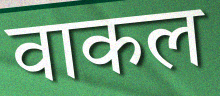
वाकल